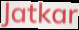
Jatkar